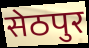
सेठपुर